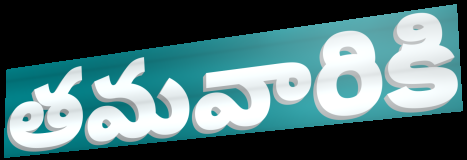
తమవారికి